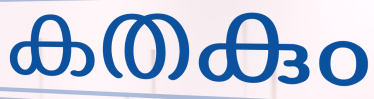
കതകും